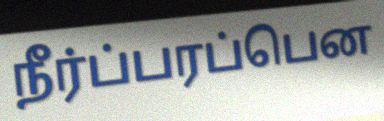
நீர்ப்பரப்பென